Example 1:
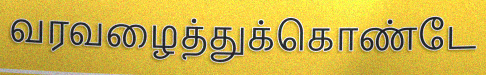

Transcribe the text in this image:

வரவழைத்துக்கொண்டே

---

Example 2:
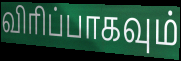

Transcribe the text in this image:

விரிப்பாகவும்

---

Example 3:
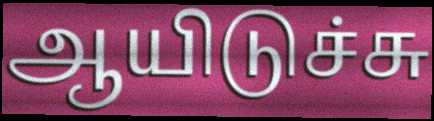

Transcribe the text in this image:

ஆயிடுச்சு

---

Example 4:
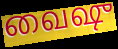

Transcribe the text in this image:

வைஷு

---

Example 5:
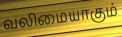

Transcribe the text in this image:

வலிமையாகும்